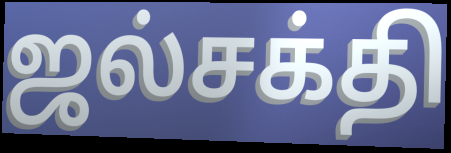
ஜல்சக்தி